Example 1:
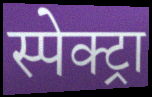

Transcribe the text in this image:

स्पेक्ट्रा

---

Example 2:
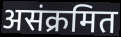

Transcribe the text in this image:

असंक्रमित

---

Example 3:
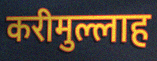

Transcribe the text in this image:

करीमुल्लाह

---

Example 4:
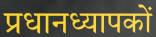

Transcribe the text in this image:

प्रधानध्यापकों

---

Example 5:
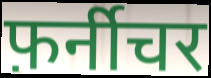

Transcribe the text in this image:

फ़र्नीचर